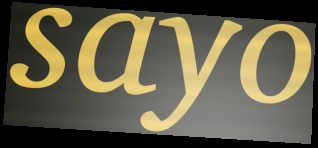
sayo